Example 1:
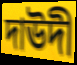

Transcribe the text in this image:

দাঊদী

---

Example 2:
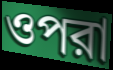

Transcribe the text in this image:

ওপরা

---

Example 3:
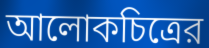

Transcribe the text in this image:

আলোকচিত্রের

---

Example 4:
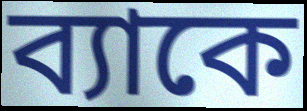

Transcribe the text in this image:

ব্যাকে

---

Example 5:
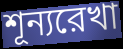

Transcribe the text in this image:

শূন্যরেখা